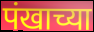
पंखाच्या